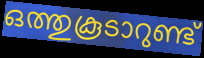
ഒത്തുകൂടാറുണ്ട്